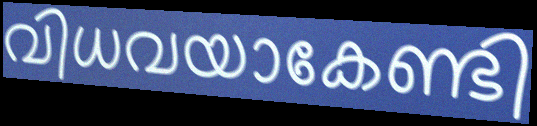
വിധവയാകേണ്ടി